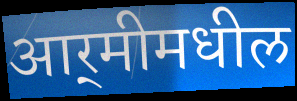
आर्मीमधील